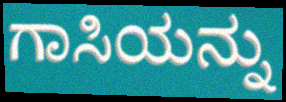
ಗಾಸಿಯನ್ನು